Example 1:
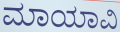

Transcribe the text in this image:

ಮಾಯಾವಿ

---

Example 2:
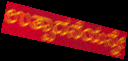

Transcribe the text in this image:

ಉತ್ಪಾದನೆಯನ್ನೇ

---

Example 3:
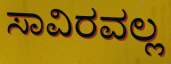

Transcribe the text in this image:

ಸಾವಿರವಲ್ಲ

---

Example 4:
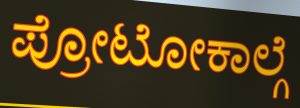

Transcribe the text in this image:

ಪ್ರೋಟೋಕಾಲ್ಗೆ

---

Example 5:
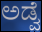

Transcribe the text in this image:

ಅಡ್ವೆ